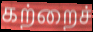
கற்றைச்